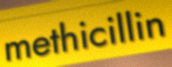
methicillin